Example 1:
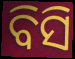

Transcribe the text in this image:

ବିସି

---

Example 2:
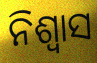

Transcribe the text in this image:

ନିଶ୍ଵାସ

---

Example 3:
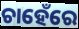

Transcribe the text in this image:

ଚାହେଁରେ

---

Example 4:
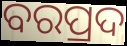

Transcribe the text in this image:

ବରପ୍ରଦ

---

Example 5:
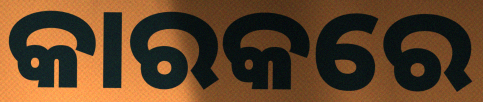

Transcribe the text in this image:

କାରକରେ